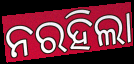
ନରହିଲା